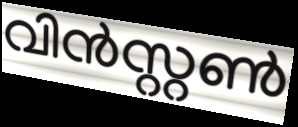
വിൻസ്റ്റൺ